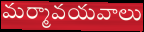
మర్మావయవాలు